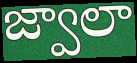
జ్వాలా